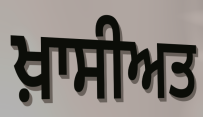
ਖ਼ਾਸੀਅਤ